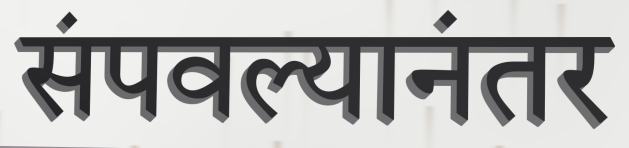
संपवल्यानंतर